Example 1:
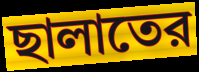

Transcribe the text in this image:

ছালাতের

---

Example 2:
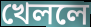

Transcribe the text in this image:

খেললে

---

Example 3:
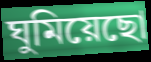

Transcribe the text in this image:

ঘুমিয়েছো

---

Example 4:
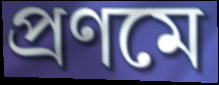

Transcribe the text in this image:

প্রণমে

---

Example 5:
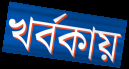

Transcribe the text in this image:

খর্বকায়